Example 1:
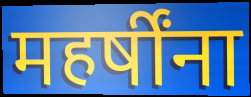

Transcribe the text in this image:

महर्षींना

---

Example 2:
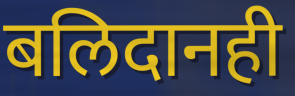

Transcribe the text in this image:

बलिदानही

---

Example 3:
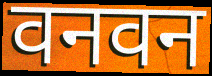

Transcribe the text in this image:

वनवन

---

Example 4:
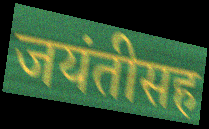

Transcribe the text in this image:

जयंतीसह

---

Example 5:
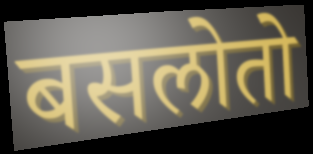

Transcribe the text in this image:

बसलोतो